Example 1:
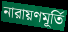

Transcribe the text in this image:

নারায়ণমূর্তি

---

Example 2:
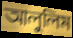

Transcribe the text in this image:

আলুলিম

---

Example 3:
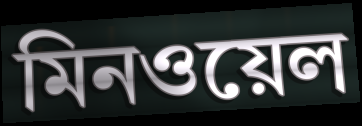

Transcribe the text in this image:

মিনওয়েল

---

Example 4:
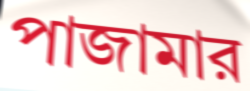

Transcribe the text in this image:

পাজামার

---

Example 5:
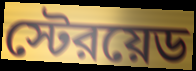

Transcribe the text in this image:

স্টেরয়েড